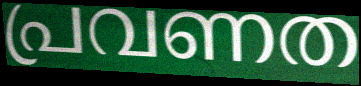
പ്രവണത